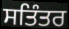
ਸਤਿੰਤਰ